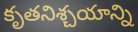
కృతనిశ్చయాన్ని